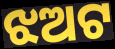
ଝଅଟ